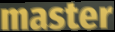
master